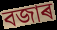
বজাৰ